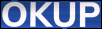
OKUP